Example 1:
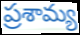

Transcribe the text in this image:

ప్రశామ్య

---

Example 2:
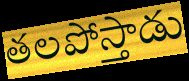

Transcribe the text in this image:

తలపోస్తాడు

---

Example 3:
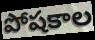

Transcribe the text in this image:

పోషకాల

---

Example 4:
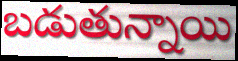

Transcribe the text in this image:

బడుతున్నాయి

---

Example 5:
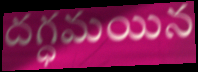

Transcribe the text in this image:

దగ్ధమయిన